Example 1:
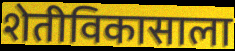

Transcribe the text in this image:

शेतीविकासाला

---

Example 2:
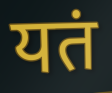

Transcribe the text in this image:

यतं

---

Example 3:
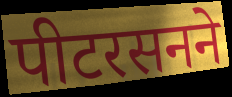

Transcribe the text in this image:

पीटरसनने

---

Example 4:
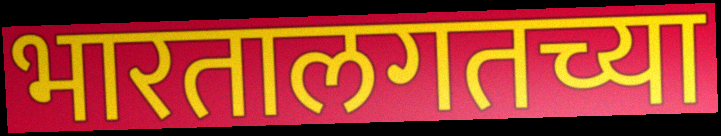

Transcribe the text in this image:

भारतालगतच्या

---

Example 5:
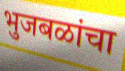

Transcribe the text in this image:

भुजबळांचा